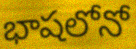
భాషలోనో